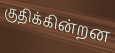
குதிக்கின்றன